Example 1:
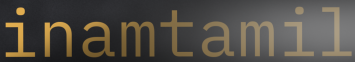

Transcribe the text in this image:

inamtamil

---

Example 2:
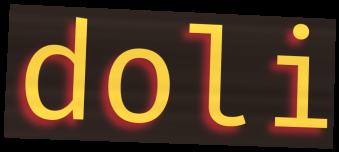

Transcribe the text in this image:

doli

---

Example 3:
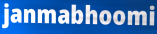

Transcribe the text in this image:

janmabhoomi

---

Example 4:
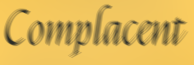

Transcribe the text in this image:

Complacent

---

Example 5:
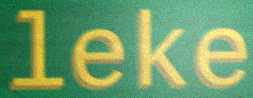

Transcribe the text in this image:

leke